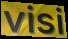
visi